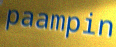
paampin